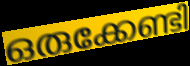
ഒരുക്കേണ്ടി